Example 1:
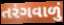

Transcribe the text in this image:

તરંગવાળું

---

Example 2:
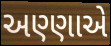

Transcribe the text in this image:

અણ્ણાએ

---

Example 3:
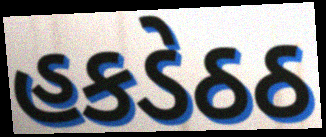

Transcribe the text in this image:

હકડેઠઠ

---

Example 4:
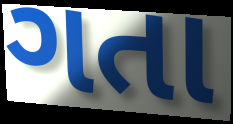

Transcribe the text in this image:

ગતા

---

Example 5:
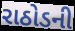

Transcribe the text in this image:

રાઠોડની